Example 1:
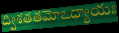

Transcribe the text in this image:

ద్విశతతమోఽధ్యాయః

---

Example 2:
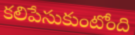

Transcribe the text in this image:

కలిపేసుకుంటోంది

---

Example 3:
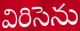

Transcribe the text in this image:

విరిసెను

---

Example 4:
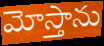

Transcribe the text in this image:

మోస్తాను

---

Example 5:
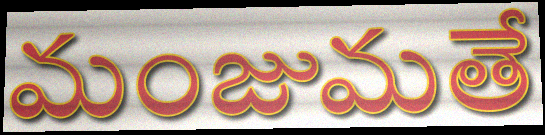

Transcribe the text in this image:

మంజుమతే